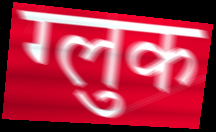
ग्लुक